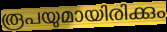
രൂപയുമായിരിക്കും